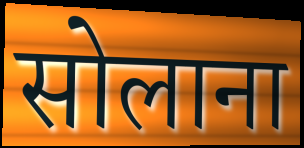
सोलाना